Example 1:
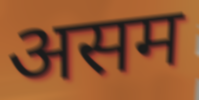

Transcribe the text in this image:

असम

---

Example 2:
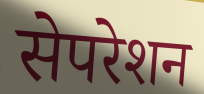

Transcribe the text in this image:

सेपरेशन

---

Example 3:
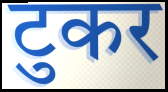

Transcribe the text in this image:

टुकर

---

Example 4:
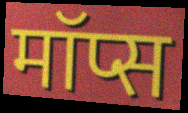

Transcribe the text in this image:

मॉप्स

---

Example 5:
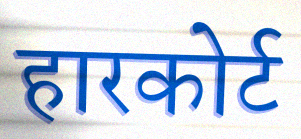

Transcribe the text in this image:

हारकोर्ट